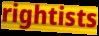
rightists